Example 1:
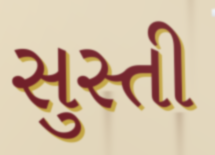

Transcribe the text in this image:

સુસ્તી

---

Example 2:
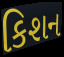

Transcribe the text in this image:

કિશન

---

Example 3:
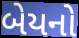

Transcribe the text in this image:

બેયનો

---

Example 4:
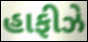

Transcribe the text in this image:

હાફીઝે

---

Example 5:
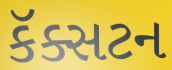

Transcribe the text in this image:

કૅક્સટન